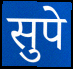
सुपे